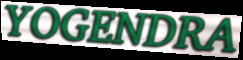
YOGENDRA